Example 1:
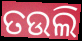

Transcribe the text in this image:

ତଉଲି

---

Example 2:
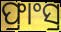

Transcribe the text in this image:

ଫ୍ରାଂସ୍ର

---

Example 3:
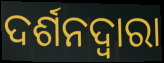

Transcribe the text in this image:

ଦର୍ଶନଦ୍ୱାରା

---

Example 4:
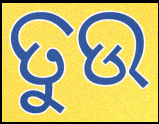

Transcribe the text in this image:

ତୁଉ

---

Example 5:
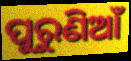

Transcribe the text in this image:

ପୁରୁଣିଆଁ